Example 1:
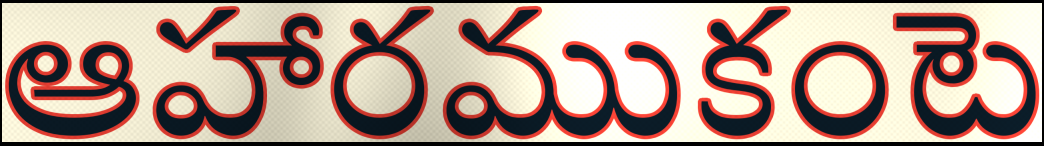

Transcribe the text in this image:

ఆహారముకంటె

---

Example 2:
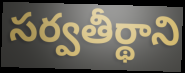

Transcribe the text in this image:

సర్వతీర్థాని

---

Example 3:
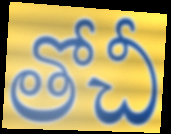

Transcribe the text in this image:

తోచీ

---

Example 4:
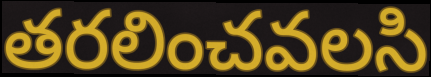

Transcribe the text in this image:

తరలించవలసి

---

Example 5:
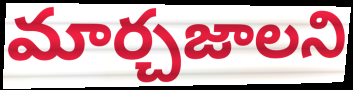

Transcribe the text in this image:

మార్చజాలని